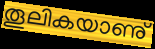
തൂലികയാണു്